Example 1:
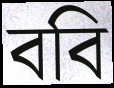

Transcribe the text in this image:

ববি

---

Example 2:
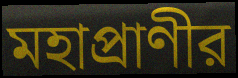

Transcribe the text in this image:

মহাপ্রাণীর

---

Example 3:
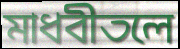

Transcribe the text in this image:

মাধবীতলে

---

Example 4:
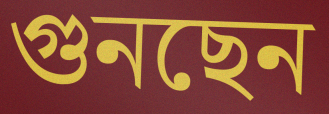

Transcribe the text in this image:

গুনছেন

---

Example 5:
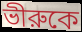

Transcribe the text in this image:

ভীরুকে